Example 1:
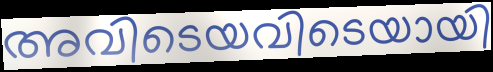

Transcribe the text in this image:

അവിടെയവിടെയായി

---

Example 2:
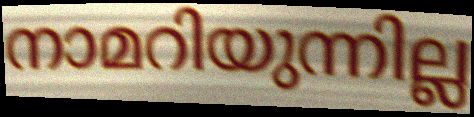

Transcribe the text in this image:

നാമറിയുന്നില്ല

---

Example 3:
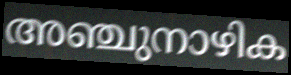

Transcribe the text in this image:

അഞ്ചുനാഴിക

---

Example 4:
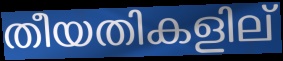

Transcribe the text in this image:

തീയതികളില്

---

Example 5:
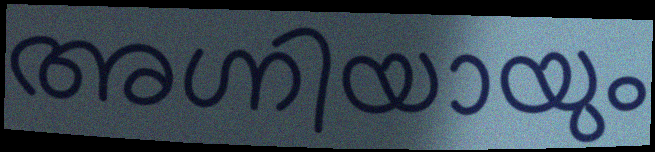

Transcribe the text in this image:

അഗ്നിയായും